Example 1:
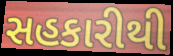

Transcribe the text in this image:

સહકારીથી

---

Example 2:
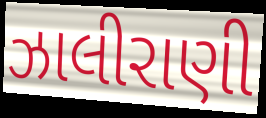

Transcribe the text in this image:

ઝાલીરાણી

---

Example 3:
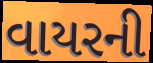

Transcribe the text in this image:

વાયરની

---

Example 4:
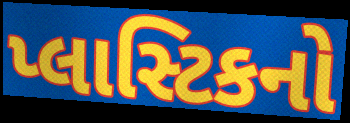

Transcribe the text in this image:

પ્લાસ્ટિકનો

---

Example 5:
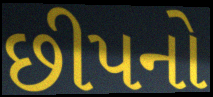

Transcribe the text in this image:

છીપનો